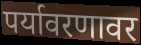
पर्यावरणावर